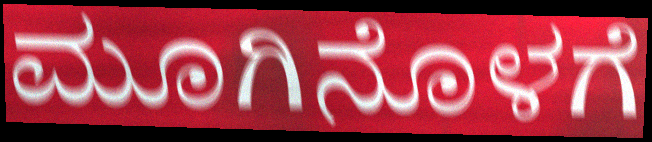
ಮೂಗಿನೊಳಗೆ